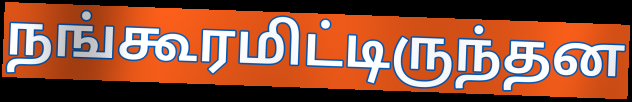
நங்கூரமிட்டிருந்தன